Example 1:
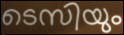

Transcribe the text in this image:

ടെസിയും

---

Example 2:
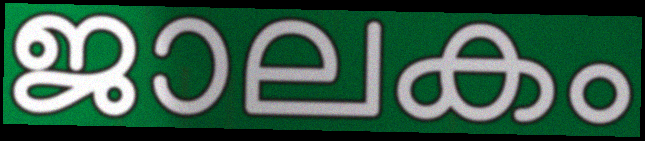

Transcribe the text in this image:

ജാലകം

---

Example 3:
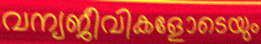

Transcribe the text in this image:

വന്യജീവികളോടെയും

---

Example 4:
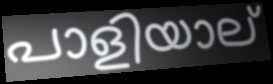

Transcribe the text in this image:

പാളിയാല്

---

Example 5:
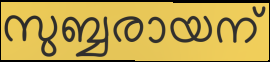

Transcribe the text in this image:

സുബ്ബരായന്